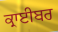
ਕ੍ਰਾਈਬਰ